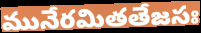
మునేరమితతేజసః